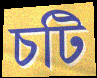
চটি